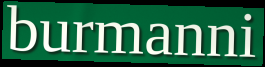
burmanni